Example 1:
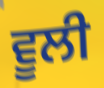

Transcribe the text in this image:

ਵੂਲੀ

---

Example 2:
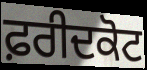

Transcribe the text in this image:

ਫ਼ਰੀਦਕੋਟ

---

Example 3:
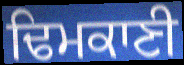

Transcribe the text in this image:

ਢਿਮਕਾਣੀ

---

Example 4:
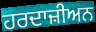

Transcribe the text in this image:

ਹਰਦਾਜ਼ੀਅਨ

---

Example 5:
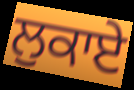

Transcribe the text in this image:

ਲੁਕਾਏ